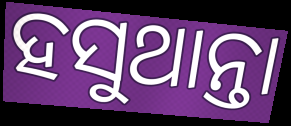
ହସୁଥାନ୍ତା